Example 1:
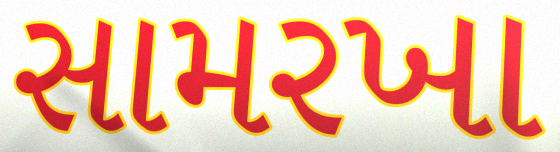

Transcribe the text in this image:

સામરખા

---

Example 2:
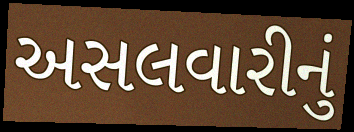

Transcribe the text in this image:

અસલવારીનું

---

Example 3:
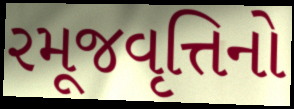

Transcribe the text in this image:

રમૂજવૃત્તિનો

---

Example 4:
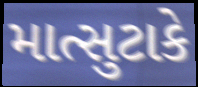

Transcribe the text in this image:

માત્સુટાકે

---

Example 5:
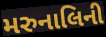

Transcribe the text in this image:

મરુનાલિની